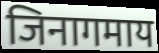
जिनागमाय